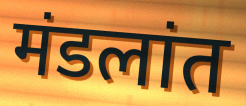
मंडलांत